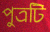
পুত্রটি